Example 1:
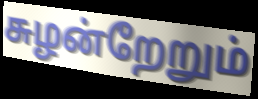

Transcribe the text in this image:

சுழன்றேறும்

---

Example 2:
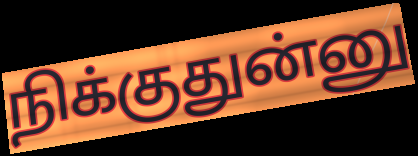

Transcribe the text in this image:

நிக்குதுன்னு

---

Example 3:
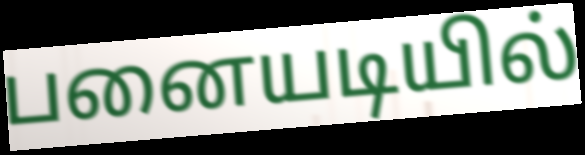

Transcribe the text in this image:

பனையடியில்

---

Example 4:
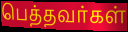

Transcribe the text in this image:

பெத்தவர்கள்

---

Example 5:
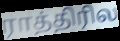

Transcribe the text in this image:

ராத்திரில